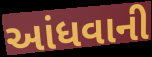
આંધવાની